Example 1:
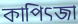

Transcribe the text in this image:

কাপিৎজা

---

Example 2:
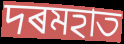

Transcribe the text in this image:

দৰমহাত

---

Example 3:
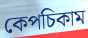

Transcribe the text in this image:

কেপচিকাম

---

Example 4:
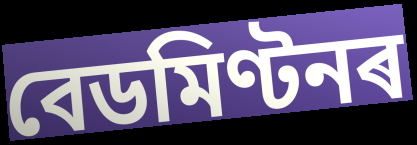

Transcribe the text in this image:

বেডমিণ্টনৰ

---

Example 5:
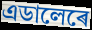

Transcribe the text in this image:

এডালেৰে